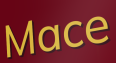
Mace